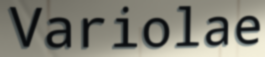
Variolae